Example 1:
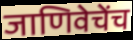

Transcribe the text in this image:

जाणिवेचेंच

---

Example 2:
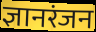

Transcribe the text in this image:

ज्ञानरंजन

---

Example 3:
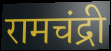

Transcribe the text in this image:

रामचंद्री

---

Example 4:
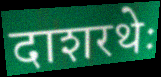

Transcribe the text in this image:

दाशरथेः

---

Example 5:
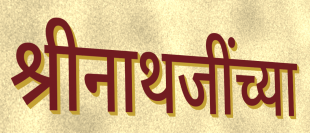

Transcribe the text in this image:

श्रीनाथजींच्या